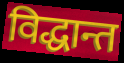
विद्धान्त